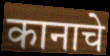
कानाचे